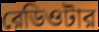
রেডিওটার